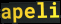
apeli